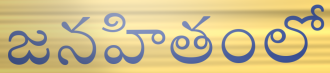
జనహితంలో